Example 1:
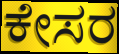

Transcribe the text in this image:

ಕೇಸರ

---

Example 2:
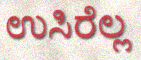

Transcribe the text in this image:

ಉಸಿರೆಲ್ಲ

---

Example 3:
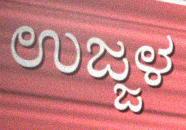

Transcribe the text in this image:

ಉಜ್ಜಳ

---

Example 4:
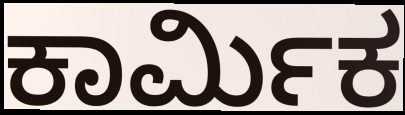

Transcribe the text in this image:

ಕಾರ್ಮಿಕ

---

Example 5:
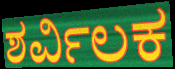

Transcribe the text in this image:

ಶರ್ವಿಲಕ